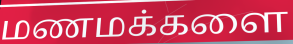
மணமக்களை